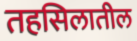
तहसिलातील